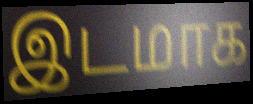
இடமாக